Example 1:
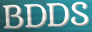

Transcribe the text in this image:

BDDS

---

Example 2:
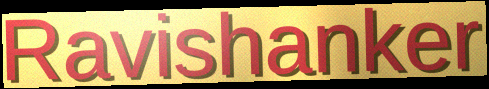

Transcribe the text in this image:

Ravishanker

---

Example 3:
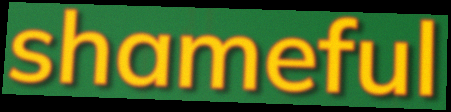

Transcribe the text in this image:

shameful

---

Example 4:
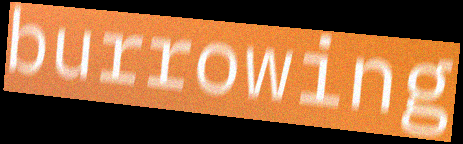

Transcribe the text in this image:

burrowing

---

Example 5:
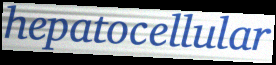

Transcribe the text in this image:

hepatocellular